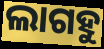
ଲାଗହୁ